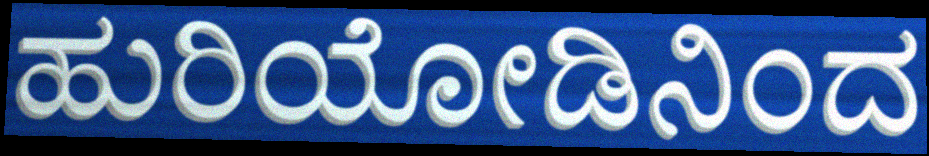
ಹುರಿಯೋಡಿನಿಂದ